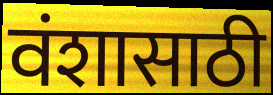
वंशासाठी